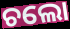
ଚଲୋ